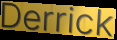
Derrick